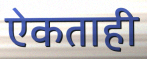
ऐकताही